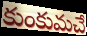
కుంకుమచే